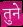
तुने